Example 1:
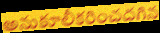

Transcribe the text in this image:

అనుకూలీకరించదగిన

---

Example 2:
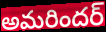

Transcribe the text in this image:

అమరిందర్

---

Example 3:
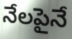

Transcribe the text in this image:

నేలపైనే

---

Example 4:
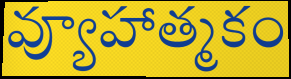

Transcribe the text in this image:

వ్యూహాత్మకం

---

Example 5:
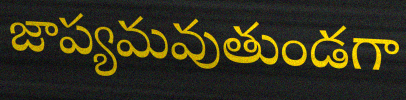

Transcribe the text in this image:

జాప్యమవుతుండగా